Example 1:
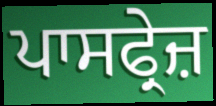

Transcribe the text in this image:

ਪਾਸਫ੍ਰੇਜ਼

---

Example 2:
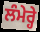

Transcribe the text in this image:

ਲੰਮੇਰ੍ਹੇ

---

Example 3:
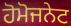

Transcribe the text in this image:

ਹੋਮੋਜਨੇਟ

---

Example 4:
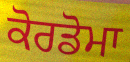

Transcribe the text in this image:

ਕੋਰਡੋਮਾ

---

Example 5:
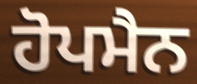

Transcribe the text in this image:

ਹੋਪਮੈਨ